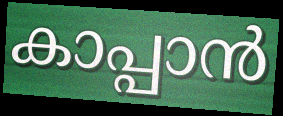
കാപ്പാൻ